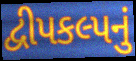
દ્વીપકલ્પનું